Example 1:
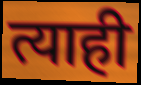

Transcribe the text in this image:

त्याही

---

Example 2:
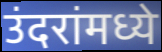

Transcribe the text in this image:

उंदरांमध्ये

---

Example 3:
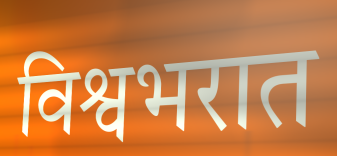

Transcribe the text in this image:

विश्वभरात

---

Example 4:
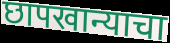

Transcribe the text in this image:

छापखान्याचा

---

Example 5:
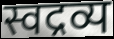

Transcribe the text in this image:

स्वद्रव्य